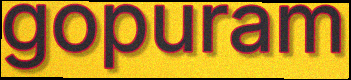
gopuram